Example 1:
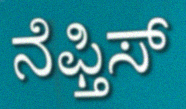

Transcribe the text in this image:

ನೆಫ್ತಿಸ್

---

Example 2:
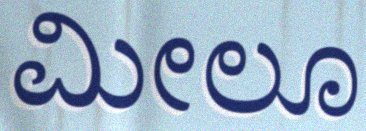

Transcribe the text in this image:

ಮೀಲೂ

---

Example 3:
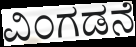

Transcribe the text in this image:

ವಿಂಗಡನೆ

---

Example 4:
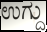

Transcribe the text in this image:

ಉಗ್ದು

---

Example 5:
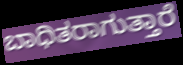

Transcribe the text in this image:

ಬಾಧಿತರಾಗುತ್ತಾರೆ